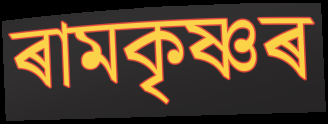
ৰামকৃষ্ণৰ